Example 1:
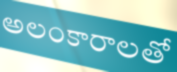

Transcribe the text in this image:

అలంకారాలతో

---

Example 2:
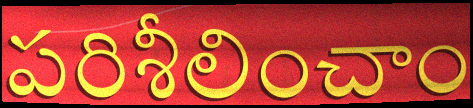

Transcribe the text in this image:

పరిశీలించాం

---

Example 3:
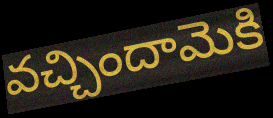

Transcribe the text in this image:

వచ్చిందామెకి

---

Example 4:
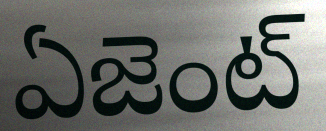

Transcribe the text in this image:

ఏజెంట్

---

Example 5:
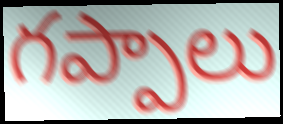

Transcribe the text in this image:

గప్పాలు